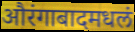
औरंगाबादमधलं